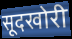
सूदखोरी